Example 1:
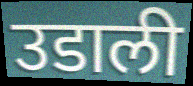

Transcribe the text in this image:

उडाली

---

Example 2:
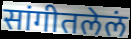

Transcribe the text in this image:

सांगीतलेलं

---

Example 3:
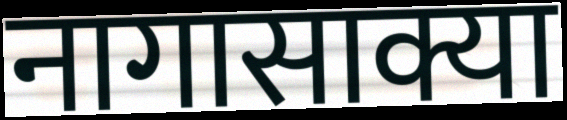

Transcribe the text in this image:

नागासाक्या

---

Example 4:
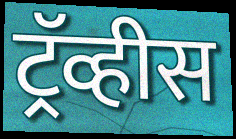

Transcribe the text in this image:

ट्रॅव्हीस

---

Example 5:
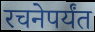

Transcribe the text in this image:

रचनेपर्यंत